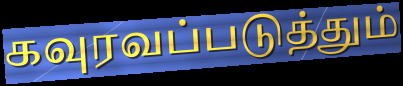
கவுரவப்படுத்தும்